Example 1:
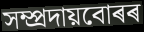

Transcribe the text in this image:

সম্প্ৰদায়বোৰৰ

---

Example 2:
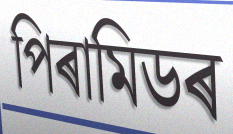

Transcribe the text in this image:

পিৰামিডৰ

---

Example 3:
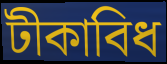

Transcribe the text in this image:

টীকাবিধ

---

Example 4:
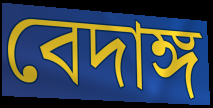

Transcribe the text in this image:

বেদাঙ্গ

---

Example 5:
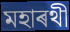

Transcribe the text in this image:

মহাৰথী